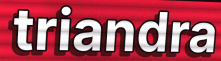
triandra